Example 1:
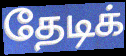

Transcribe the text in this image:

தேடிக்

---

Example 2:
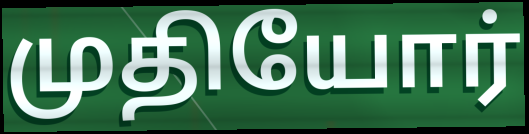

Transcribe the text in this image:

முதியோர்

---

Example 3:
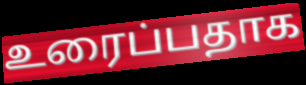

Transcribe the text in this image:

உரைப்பதாக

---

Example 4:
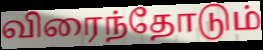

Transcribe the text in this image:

விரைந்தோடும்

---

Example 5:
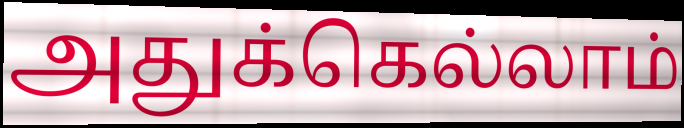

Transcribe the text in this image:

அதுக்கெல்லாம்